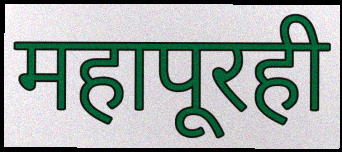
महापूरही